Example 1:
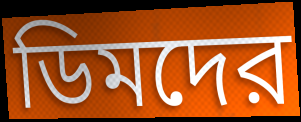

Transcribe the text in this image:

ডিমদের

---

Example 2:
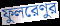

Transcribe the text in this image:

ফুলরেণুর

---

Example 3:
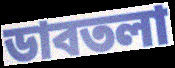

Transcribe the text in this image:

ডাবতলা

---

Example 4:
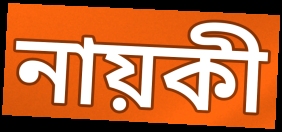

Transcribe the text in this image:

নায়কী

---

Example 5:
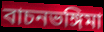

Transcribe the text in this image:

বাচনভঙ্গিমা